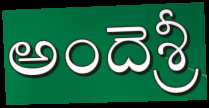
అందెశ్రీ